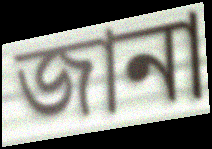
জানা